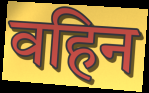
वहिन